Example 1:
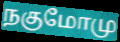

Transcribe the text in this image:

நகுமோமு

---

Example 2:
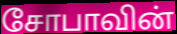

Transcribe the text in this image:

சோபாவின்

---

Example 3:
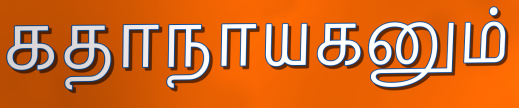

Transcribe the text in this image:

கதாநாயகனும்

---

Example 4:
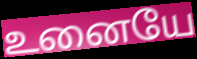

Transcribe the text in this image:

உனையே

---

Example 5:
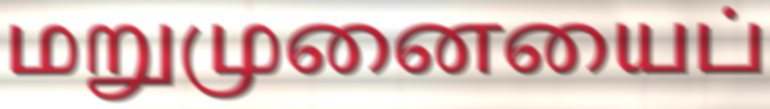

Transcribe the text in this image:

மறுமுனையைப்